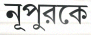
নূপুরকে